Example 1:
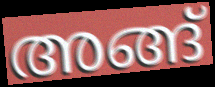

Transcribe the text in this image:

അങ്ങ്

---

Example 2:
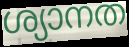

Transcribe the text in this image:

ശ്യാനത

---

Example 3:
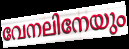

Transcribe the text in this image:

വേനലിനേയും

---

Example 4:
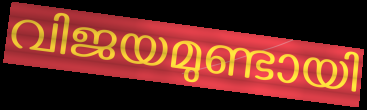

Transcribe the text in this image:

വിജയമുണ്ടായി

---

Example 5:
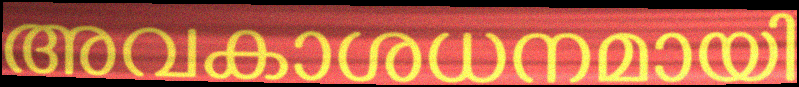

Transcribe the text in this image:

അവകാശധനമായി